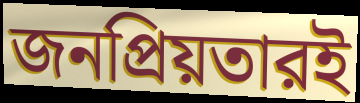
জনপ্রিয়তারই